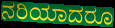
ನರಿಯಾದರೂ